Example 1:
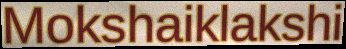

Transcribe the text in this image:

Mokshaiklakshi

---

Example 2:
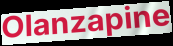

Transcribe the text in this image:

Olanzapine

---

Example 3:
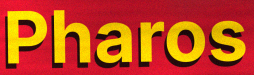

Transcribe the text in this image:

Pharos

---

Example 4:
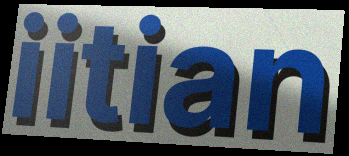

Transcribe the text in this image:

iitian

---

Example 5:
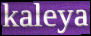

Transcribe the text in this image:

kaleya